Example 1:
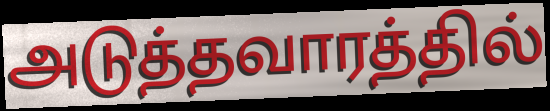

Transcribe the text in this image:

அடுத்தவாரத்தில்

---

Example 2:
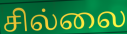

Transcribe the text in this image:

சில்லை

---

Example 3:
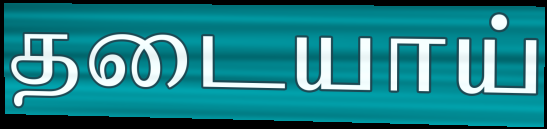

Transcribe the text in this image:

தடையாய்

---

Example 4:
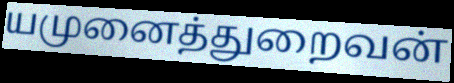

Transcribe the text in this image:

யமுனைத்துறைவன்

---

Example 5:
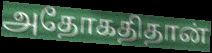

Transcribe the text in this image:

அதோகதிதான்